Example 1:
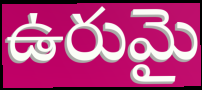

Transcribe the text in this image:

ఉరుమై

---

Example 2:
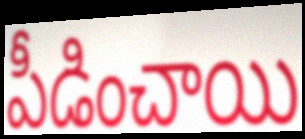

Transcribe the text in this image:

పీడించాయి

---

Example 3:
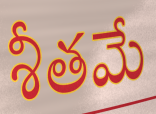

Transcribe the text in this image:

శీతమే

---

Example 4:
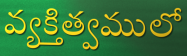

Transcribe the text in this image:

వ్యక్తిత్వములో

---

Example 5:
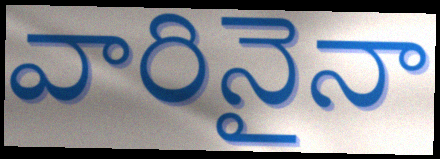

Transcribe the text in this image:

వారినైనా